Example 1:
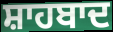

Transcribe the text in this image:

ਸ਼ਾਹਬਾਦ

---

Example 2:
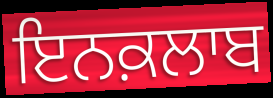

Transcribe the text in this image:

ਇਨਕ਼ਲਾਬ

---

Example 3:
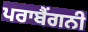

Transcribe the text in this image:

ਪਰਾਬੈਂਗਨੀ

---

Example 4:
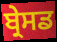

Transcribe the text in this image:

ਬ੍ਰੇਸਡ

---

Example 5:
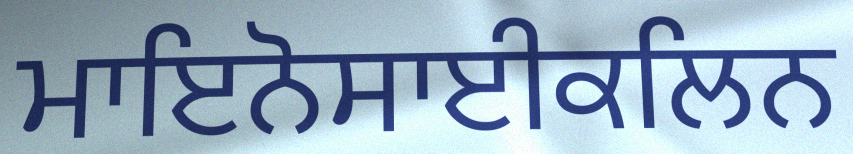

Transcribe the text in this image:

ਮਾਇਨੋਸਾਈਕਲਿਨ